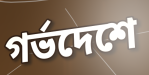
গর্ভদেশে